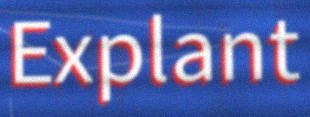
Explant